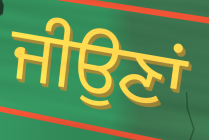
ਜੀਉਣਾਂ